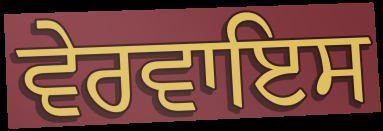
ਵੇਰਵਾਇਸ